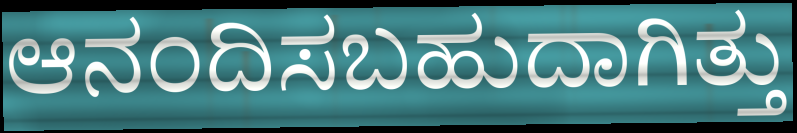
ಆನಂದಿಸಬಹುದಾಗಿತ್ತು